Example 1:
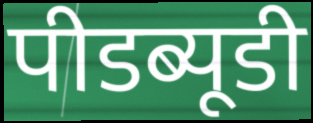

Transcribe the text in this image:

पीडब्यूडी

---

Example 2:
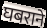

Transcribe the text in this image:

घबराने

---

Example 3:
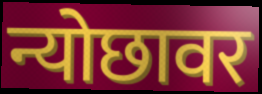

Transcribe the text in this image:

न्योछावर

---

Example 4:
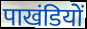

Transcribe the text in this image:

पाखंडियों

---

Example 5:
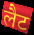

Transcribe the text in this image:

लैट